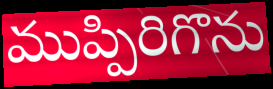
ముప్పిరిగొను